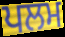
ਪਲਮ